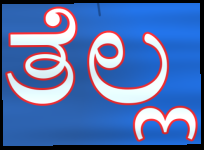
ತೆಲ್ಲ